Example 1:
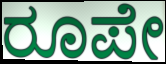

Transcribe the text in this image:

ರೂಪೇ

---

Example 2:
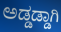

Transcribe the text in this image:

ಅಡ್ಡಡ್ಡಾಗಿ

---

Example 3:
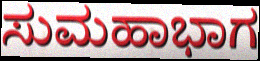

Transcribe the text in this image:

ಸುಮಹಾಭಾಗ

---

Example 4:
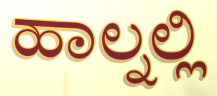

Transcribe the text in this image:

ಹಾಲ್ನಲ್ಲಿ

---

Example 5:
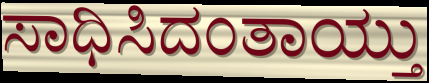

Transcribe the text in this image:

ಸಾಧಿಸಿದಂತಾಯ್ತು